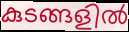
കുടങ്ങളിൽ